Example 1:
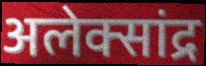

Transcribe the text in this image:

अलेक्सांद्र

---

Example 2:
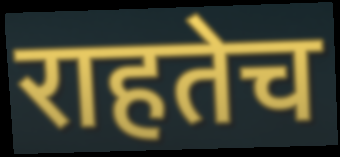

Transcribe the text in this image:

राहतेच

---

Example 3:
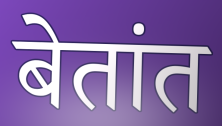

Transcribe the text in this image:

बेतांत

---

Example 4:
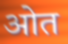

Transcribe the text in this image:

ओत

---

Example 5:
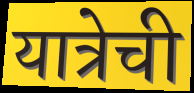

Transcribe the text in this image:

यात्रेची